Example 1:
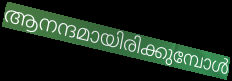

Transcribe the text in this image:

ആനന്ദമായിരിക്കുമ്പോൾ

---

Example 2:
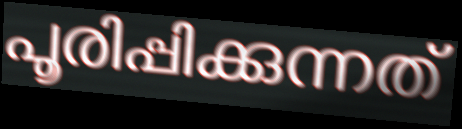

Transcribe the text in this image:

പൂരിപ്പിക്കുന്നത്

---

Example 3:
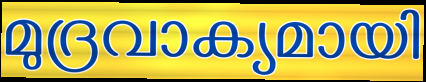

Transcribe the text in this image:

മുദ്രവാക്യമായി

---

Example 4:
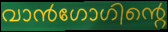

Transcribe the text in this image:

വാൻഗോഗിന്റെ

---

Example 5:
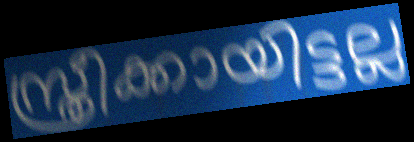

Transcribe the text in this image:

സ്ത്രീക്കായിട്ടല്ല